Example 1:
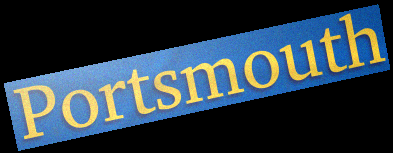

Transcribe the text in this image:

Portsmouth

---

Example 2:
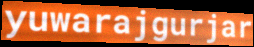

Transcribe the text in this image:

yuwarajgurjar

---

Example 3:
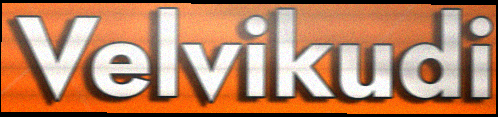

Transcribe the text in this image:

Velvikudi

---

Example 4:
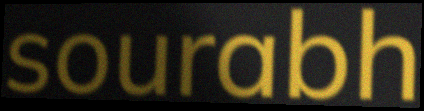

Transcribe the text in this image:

sourabh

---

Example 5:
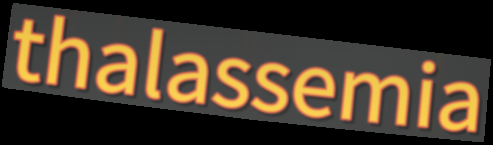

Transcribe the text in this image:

thalassemia